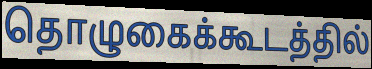
தொழுகைக்கூடத்தில்